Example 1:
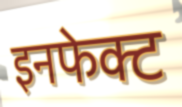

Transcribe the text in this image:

इनफेक्ट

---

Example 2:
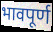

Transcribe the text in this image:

भावपूर्ण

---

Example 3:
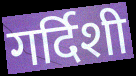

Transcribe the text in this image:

गर्दिशी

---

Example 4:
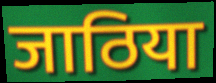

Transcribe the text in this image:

जाठिया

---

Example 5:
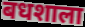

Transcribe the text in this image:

बधशाला